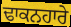
ਢਾਕਨਹਾਰੇ